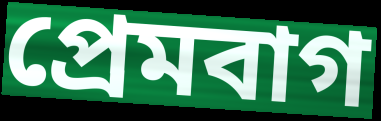
প্রেমবাগ